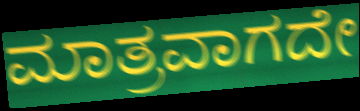
ಮಾತ್ರವಾಗದೇ